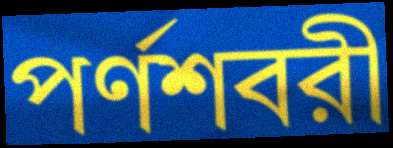
পর্ণশবরী